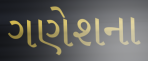
ગણેશના